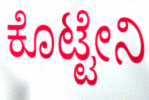
ಕೊಟ್ಟೇನಿ